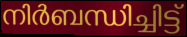
നിർബന്ധിച്ചിട്ട്